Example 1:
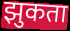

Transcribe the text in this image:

झुकता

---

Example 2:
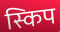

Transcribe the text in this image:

स्किप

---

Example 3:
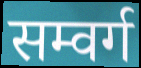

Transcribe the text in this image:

सम्वर्ग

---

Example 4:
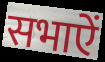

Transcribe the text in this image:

सभाऐं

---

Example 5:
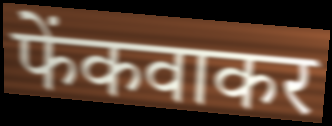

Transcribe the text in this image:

फेंकवाकर